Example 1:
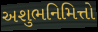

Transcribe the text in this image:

અશુભનિમિત્તો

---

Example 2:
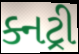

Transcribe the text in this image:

ક્નટ્રી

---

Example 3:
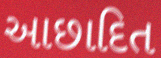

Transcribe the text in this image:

આછાદિત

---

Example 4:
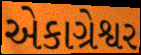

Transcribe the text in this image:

એકાગ્રેશ્વર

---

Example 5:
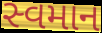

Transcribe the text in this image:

સ્વમાન